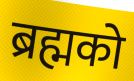
ब्रह्मको